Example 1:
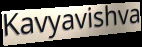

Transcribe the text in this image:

Kavyavishva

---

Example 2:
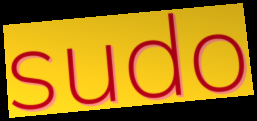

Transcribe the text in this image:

sudo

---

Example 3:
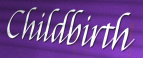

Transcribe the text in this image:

Childbirth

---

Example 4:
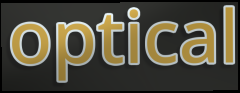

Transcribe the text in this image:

optical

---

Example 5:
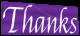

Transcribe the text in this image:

Thanks